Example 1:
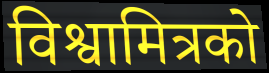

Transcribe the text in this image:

विश्वामित्रको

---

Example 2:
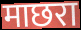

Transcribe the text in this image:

माछरा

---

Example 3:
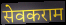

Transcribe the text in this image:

सेवकराम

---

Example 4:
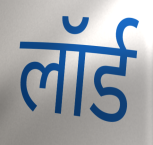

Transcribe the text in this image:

लॉर्ड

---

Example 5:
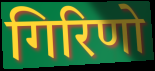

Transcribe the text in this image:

गिरिणो